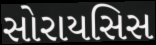
સોરાયસિસ